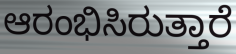
ಆರಂಭಿಸಿರುತ್ತಾರೆ